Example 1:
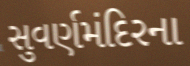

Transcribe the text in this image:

સુવર્ણમંદિરના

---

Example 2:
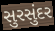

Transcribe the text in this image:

સુરસુંદર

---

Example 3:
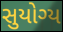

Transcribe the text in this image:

સુયોગ્ય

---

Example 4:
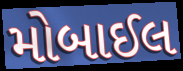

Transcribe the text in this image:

મોબાઈલ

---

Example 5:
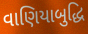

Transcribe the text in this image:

વાણિયાબુદ્ધિ